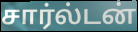
சார்ல்டன்